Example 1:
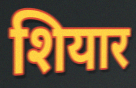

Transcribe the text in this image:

शियार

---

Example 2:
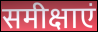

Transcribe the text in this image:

समीक्षाएं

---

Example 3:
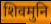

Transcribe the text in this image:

शिवमुनि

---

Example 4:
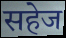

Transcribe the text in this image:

सहेज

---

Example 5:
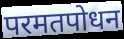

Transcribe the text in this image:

परमतपोधन